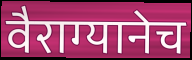
वैराग्यानेच